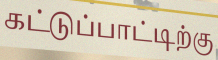
கட்டுப்பாட்டிற்கு